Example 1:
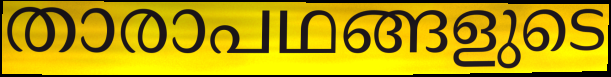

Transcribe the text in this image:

താരാപഥങ്ങളുടെ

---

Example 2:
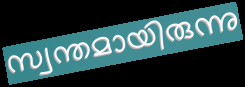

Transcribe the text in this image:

സ്വന്തമായിരുന്നു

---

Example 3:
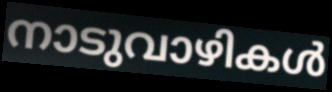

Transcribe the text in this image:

നാടുവാഴികൾ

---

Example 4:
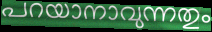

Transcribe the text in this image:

പറയാനാവുന്നതും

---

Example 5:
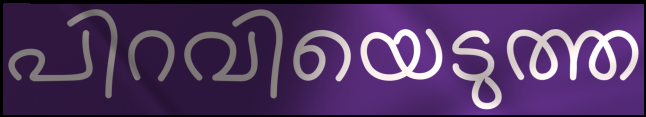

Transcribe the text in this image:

പിറവിയെടുത്ത